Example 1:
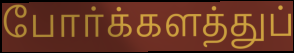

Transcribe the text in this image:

போர்க்களத்துப்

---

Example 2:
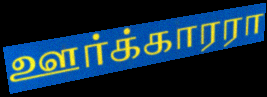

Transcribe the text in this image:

ஊர்க்காரரா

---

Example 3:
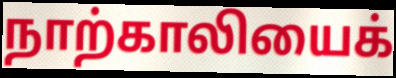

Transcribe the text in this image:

நாற்காலியைக்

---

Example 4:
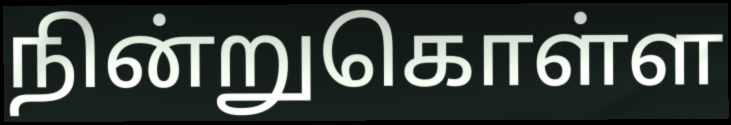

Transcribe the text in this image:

நின்றுகொள்ள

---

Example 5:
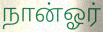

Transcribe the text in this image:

நான்ஓர்